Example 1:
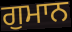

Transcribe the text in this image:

ਗੁਮਾਨ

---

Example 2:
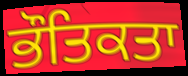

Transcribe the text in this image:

ਭੌਤਿਕਤਾ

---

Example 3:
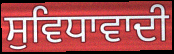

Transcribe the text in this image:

ਸੁਵਿਧਾਵਾਦੀ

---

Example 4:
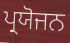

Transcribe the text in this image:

ਪ੍ਰਯੋਜਨ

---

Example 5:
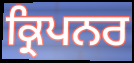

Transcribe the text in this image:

ਕ੍ਰਿਪਨਰ